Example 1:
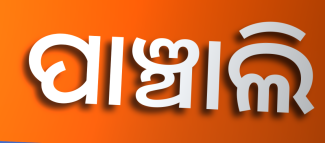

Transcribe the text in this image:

ପାଞ୍ଚାଲି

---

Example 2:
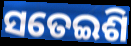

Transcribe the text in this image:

ସତେଇଶି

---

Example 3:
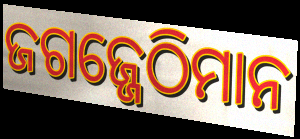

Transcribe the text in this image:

ଜଗଜ୍ଜେଠିମାନ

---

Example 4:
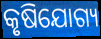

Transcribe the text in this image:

କୃଷିଯୋଗ୍ୟ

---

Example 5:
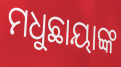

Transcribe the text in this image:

ମଧୁଛାୟାଙ୍କ